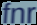
fnr